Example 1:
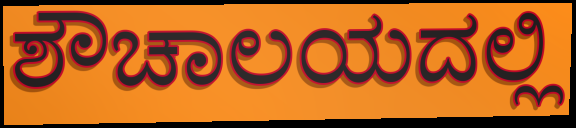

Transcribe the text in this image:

ಶೌಚಾಲಯದಲ್ಲಿ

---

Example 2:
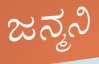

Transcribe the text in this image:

ಜನ್ಮನಿ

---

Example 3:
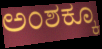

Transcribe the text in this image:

ಅಂಶಕ್ಕೂ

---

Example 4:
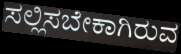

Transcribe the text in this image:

ಸಲ್ಲಿಸಬೇಕಾಗಿರುವ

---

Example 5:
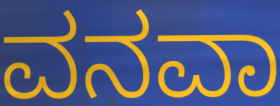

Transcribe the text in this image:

ವನವಾ